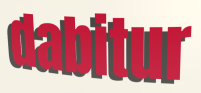
dabitur